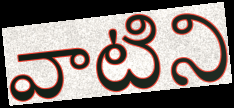
వాటిని